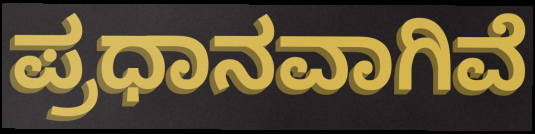
ಪ್ರಧಾನವಾಗಿವೆ